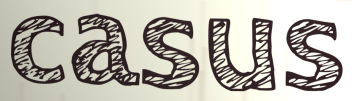
casus